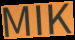
MIK